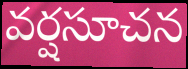
వర్షసూచన